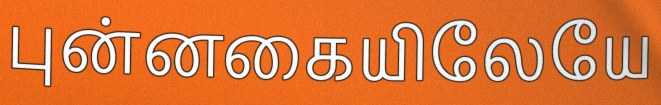
புன்னகையிலேயே